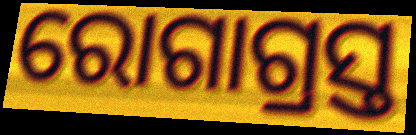
ରୋଗାଗ୍ରସ୍ତ